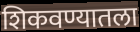
शिकवण्यातला